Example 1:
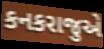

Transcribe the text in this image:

કનકરાજુએ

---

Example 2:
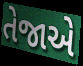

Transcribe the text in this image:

તેજાએ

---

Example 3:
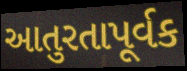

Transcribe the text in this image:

આતુરતાપૂર્વક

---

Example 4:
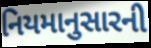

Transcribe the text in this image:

નિયમાનુસારની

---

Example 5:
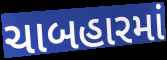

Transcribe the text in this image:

ચાબહારમાં